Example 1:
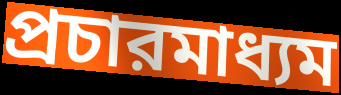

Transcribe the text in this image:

প্রচারমাধ্যম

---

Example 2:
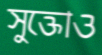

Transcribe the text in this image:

সুক্তোও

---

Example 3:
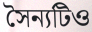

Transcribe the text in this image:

সৈন্যটিও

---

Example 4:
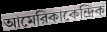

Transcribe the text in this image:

আমেরিকাকেন্দ্রিক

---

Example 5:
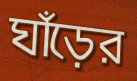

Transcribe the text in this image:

ঘাঁড়ের